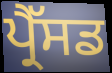
ਪ੍ਰੈੱਸਡ